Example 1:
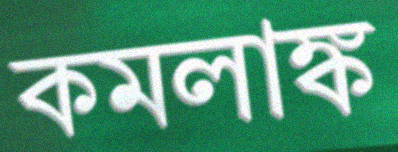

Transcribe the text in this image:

কমলাঙ্ক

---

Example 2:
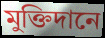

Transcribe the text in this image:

মুক্তিদানে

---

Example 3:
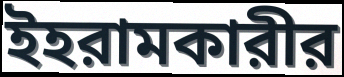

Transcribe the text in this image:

ইহরামকারীর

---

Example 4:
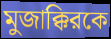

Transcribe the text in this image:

মুজাক্কিরকে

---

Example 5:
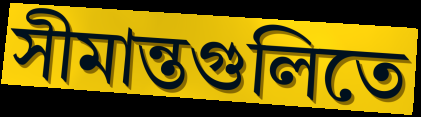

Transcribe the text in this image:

সীমান্তগুলিতে